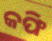
କଫି